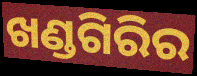
ଖଣ୍ଡଗିରିର